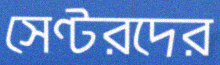
সেণ্টরদের